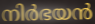
നിർഭയൻ